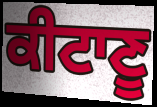
ਕੀਟਾਣੂ